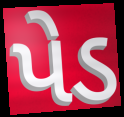
પેડ